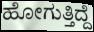
ಹೋಗುತ್ತಿದ್ದೆ